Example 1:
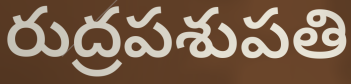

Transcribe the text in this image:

రుద్రపశుపతి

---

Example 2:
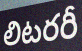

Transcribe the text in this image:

లిటరరీ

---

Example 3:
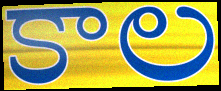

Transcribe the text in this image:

కాల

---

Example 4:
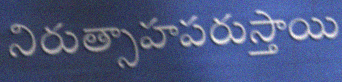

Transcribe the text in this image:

నిరుత్సాహపరుస్తాయి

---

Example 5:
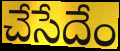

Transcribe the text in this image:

చేసేదేం